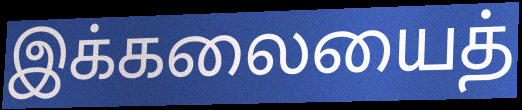
இக்கலையைத்